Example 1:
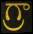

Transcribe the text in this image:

గ్రా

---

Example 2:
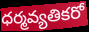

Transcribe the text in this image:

ధర్మవ్యతికరో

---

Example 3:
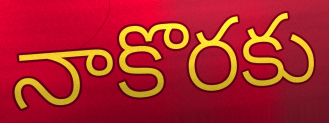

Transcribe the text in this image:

నాకొరకు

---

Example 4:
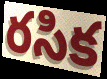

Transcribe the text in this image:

రసిక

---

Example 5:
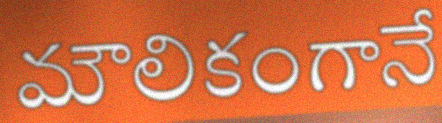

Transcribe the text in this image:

మౌలికంగానే